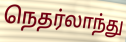
நெதர்லாந்து